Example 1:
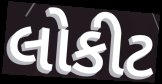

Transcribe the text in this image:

લોકીટ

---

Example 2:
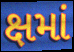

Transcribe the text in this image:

ક્ષમાં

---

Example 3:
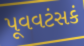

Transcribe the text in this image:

પૂવવટંસકં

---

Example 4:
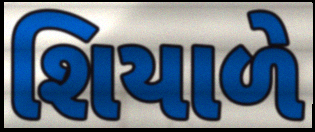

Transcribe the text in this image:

શિયાળે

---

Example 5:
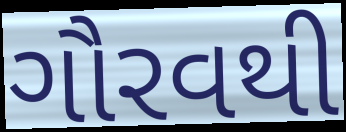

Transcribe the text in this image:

ગૌરવથી